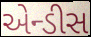
એન્ડીસ